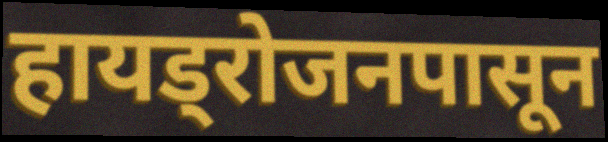
हायड्रोजनपासून